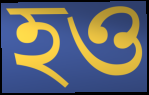
হও